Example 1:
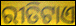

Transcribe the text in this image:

ରୀତିଟାଏ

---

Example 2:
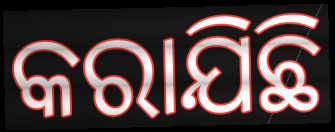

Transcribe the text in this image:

କରାଯିଛି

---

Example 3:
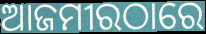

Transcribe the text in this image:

ଆଜମୀରଠାରେ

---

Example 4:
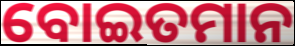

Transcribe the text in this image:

ବୋଇତମାନ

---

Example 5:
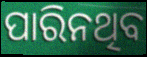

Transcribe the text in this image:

ପାରିନଥିବ